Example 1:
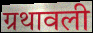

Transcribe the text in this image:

ग्रथावली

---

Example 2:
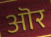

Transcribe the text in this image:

ऒर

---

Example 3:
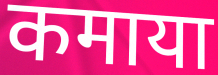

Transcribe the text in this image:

कमाया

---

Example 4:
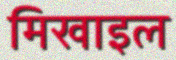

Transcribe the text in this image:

मिखाइल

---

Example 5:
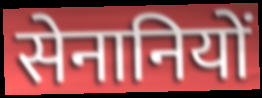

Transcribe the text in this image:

सेनानियों